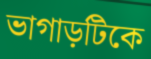
ভাগাড়টিকে